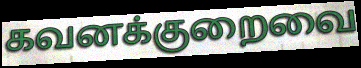
கவனக்குறைவை